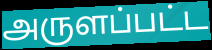
அருளப்பட்ட